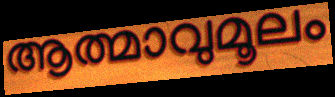
ആത്മാവുമൂലം